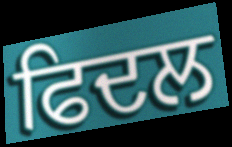
ਫਿਦਲ